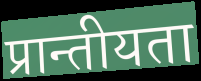
प्रान्तीयता